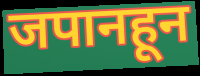
जपानहून